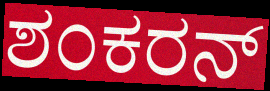
ಶಂಕರನ್